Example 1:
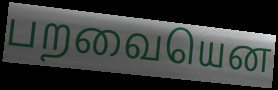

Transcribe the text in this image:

பறவையென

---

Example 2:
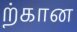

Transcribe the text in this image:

ற்கான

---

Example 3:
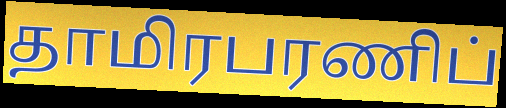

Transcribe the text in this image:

தாமிரபரணிப்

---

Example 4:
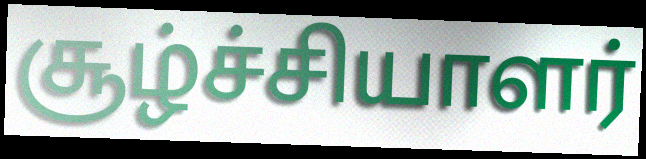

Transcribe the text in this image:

சூழ்ச்சியாளர்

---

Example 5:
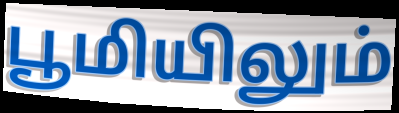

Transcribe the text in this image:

பூமியிலும்